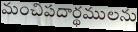
మంచిపదార్థములను